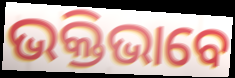
ଭକ୍ତିଭାବେ